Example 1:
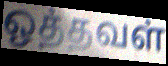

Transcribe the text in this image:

ஒத்தவள்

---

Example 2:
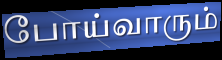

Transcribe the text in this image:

போய்வாரும்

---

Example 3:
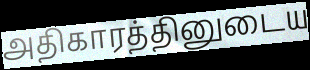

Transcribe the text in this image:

அதிகாரத்தினுடைய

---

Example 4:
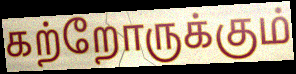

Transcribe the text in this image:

கற்றோருக்கும்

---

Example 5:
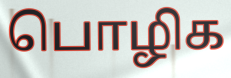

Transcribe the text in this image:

பொழிக